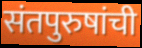
संतपुरुषांची